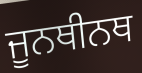
ਜੂਨਥੀਨਥ